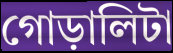
গোড়ালিটা